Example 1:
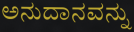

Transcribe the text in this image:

ಅನುದಾನವನ್ನು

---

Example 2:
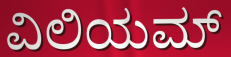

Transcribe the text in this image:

ವಿಲಿಯಮ್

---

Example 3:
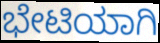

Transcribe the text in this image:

ಭೇಟಿಯಾಗಿ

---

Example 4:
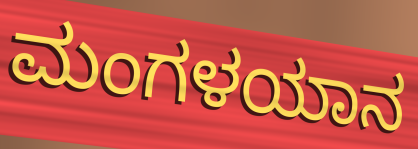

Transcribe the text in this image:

ಮಂಗಳಯಾನ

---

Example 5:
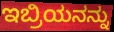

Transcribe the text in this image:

ಇಬ್ರಿಯನನ್ನು